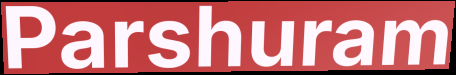
Parshuram